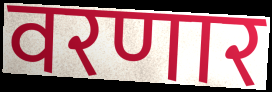
वरणार